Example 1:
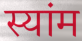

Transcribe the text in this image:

स्यांम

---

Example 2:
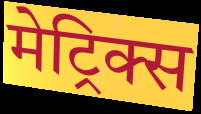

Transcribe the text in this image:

मेट्रिक्‍स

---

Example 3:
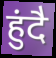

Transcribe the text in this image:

हुंदै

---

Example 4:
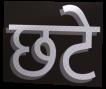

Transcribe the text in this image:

छटे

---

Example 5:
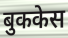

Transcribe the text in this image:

बुककेस